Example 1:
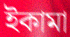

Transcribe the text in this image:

ইকামা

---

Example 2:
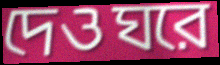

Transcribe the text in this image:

দেওঘরে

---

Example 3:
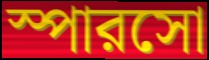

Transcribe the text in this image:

স্পারসো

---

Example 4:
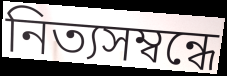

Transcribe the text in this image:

নিত্যসম্বন্ধে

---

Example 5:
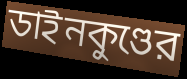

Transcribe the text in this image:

ডাইনকুণ্ডের